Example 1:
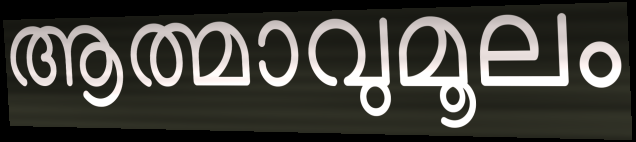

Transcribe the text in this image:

ആത്മാവുമൂലം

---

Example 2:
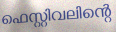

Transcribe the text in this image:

ഫെസ്റ്റിവലിന്റെ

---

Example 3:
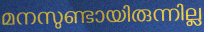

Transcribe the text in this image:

മനസുണ്ടായിരുന്നില്ല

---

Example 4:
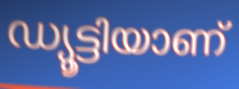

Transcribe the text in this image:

ഡ്യൂട്ടിയാണ്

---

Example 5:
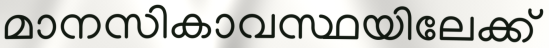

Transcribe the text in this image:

മാനസികാവസ്ഥയിലേക്ക്